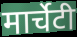
मार्चेटी